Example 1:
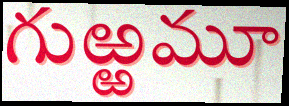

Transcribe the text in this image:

గుఱ్ఱమూ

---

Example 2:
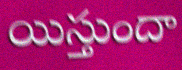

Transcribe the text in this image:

యిస్తుందా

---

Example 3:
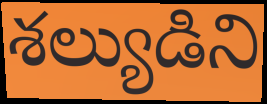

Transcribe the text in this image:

శల్యుడిని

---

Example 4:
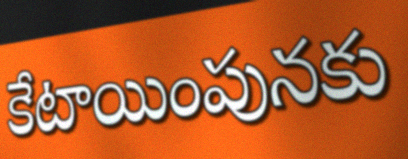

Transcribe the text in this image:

కేటాయింపునకు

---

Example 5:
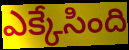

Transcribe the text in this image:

ఎక్కేసింది